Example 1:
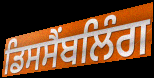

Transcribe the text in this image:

ਡਿਸਸੈਂਬਲਿੰਗ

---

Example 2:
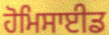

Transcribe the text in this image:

ਹੋਮਿਸਾਈਡ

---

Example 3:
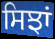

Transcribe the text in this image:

ਸਿਝਾਂ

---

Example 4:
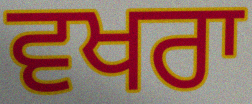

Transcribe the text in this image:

ਵਖਰਾ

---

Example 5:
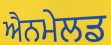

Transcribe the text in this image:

ਐਨਮੇਲਡ